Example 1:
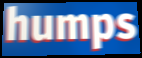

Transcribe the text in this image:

humps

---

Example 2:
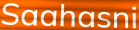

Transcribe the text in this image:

Saahasni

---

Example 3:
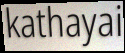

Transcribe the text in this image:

kathayai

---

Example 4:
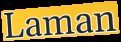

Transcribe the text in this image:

Laman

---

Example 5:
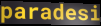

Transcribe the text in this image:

paradesi